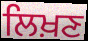
ਲਿਖ਼ਣ